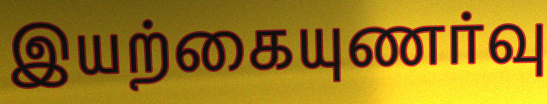
இயற்கையுணர்வு